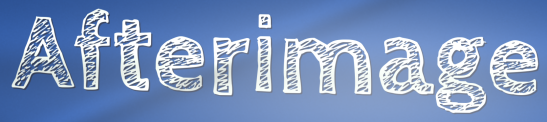
Afterimage